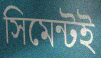
সিমেন্টই